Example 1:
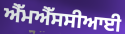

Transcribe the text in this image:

ਐੱਮਐੱਸਸੀਆਈ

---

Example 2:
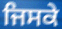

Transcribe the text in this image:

ਜਿਸਕੇ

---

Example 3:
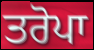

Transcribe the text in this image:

ਤਰੋਪਾ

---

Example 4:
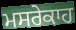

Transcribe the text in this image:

ਮਸਰੇਕਾਹ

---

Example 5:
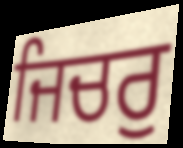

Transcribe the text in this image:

ਜਿਚਰੁ